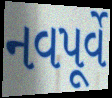
નવપૂર્વે